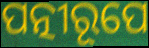
ପତ୍ନୀରୂପେ